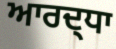
ਆਰਦ੍ਧਾ